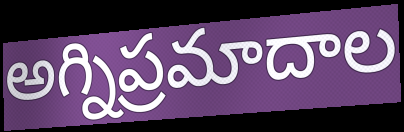
అగ్నిప్రమాదాల